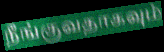
நீங்குவதாகவும்